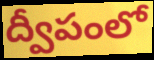
ద్వీపంలో